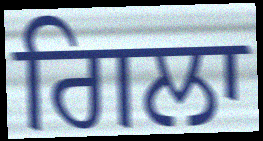
ਗਿਲਾ